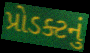
પ્રોડક્ટનું